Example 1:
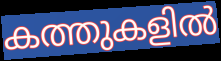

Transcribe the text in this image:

കത്തുകളിൽ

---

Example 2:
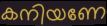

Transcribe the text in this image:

കനിയണേ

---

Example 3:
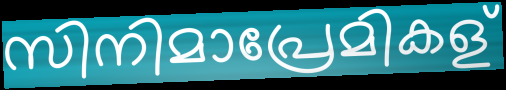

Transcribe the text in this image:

സിനിമാപ്രേമികള്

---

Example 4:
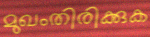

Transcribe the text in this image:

മുഖംതിരിക്കുക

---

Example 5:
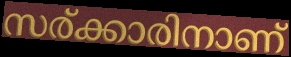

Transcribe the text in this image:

സര്ക്കാരിനാണ്